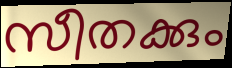
സീതക്കും